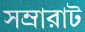
সম্রারাট